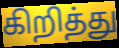
கிறித்து